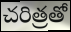
చరిత్రతో